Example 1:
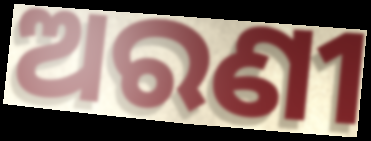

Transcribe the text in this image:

ଅରଣୀ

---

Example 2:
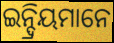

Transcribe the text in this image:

ଇନ୍ଦ୍ରିୟମାନେ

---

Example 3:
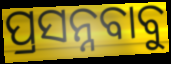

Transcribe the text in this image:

ପ୍ରସନ୍ନବାବୁ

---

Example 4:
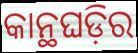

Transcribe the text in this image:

କାନ୍ଥଘଡ଼ିର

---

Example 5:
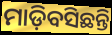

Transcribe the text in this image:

ମାଡ଼ିବସିଛନ୍ତି